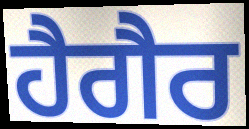
ਹੈਗੈਰ